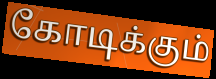
கோடிக்கும்